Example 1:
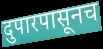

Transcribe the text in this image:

दुपारपासूनच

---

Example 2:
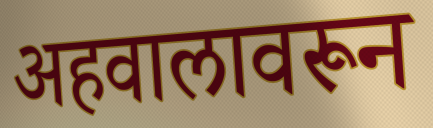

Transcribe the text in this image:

अहवालावरून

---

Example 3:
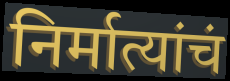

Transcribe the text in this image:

निर्मात्यांचं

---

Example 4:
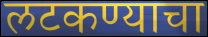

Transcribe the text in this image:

लटकण्याचा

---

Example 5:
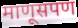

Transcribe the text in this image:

माणूसपण